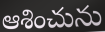
ఆశించును